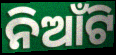
ନିଆଁଟି